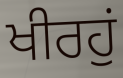
ਖੀਰਹੁਂ